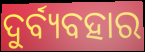
ଦୁର୍ବ୍ୟବହାର